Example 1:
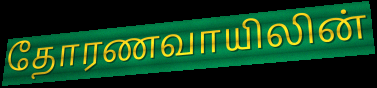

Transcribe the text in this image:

தோரணவாயிலின்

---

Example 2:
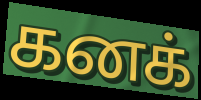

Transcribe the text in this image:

கனக்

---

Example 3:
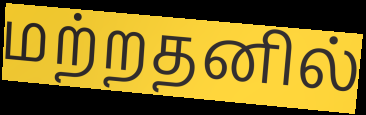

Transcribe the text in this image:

மற்றதனில்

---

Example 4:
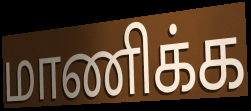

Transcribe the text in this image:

மாணிக்க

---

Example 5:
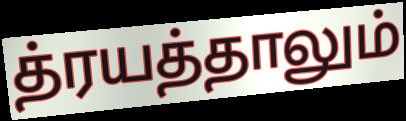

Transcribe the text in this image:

த்ரயத்தாலும்